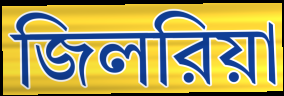
জিলরিয়া